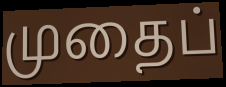
முதைப்